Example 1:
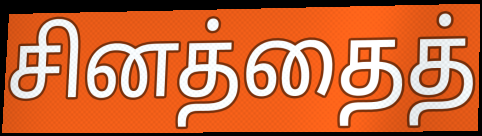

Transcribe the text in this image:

சினத்தைத்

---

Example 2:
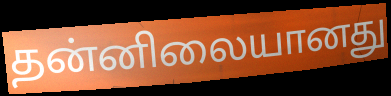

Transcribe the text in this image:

தன்னிலையானது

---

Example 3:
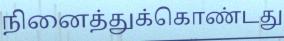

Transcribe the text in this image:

நினைத்துக்கொண்டது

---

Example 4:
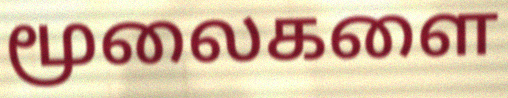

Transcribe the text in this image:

மூலைகளை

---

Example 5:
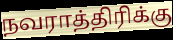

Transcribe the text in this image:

நவராத்திரிக்கு